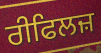
ਰੀਫਿਲਜ਼